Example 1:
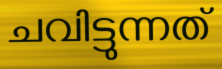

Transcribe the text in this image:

ചവിട്ടുന്നത്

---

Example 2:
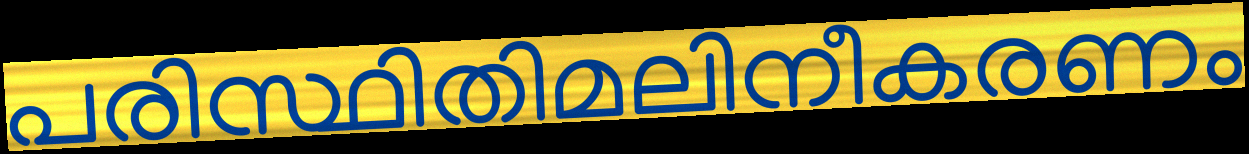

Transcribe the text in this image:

പരിസ്ഥിതിമലിനീകരണം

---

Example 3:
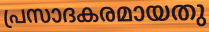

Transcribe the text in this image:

പ്രസാദകരമായതു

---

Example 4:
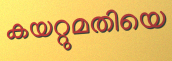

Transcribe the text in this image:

കയറ്റുമതിയെ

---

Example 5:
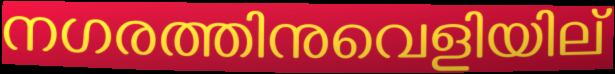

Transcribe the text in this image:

നഗരത്തിനുവെളിയില്